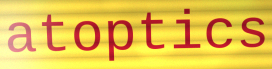
atoptics